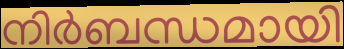
നിർബന്ധമായി